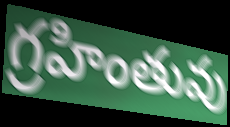
గ్రహింతువు